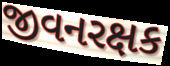
જીવનરક્ષક